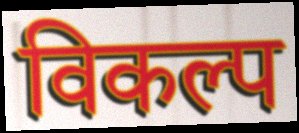
विकल्प